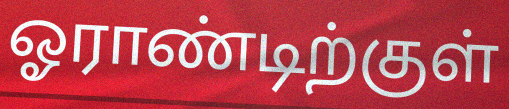
ஓராண்டிற்குள்